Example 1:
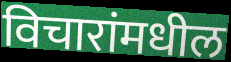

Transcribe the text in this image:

विचारांमधील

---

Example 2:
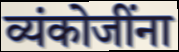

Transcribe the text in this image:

व्यंकोजींना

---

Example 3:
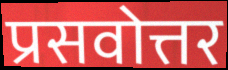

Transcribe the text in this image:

प्रसवोत्तर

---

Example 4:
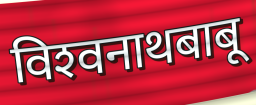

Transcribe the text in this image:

विश्‍वनाथबाबू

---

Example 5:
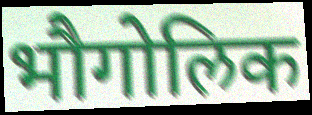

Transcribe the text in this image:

भौगोलिक